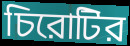
চিরোটির